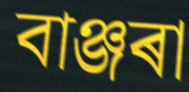
বাঞ্জৰা